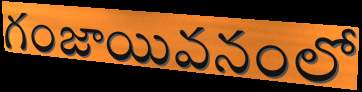
గంజాయివనంలో